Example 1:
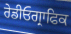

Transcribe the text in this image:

ਰੇਡੀਓਗ੍ਰਾਫਿਕ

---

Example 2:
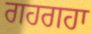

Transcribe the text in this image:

ਗਹਗਹਾ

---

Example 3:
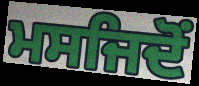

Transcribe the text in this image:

ਮਸਜਿਦੋਂ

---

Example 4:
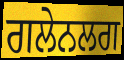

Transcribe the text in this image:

ਗਲੇਨਲਗ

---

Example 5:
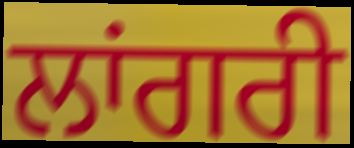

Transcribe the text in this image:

ਲਾਂਗਰੀ